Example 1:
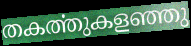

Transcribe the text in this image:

തകൎത്തുകളഞ്ഞു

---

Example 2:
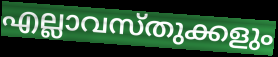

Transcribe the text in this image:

എല്ലാവസ്തുക്കളും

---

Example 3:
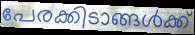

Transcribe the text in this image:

പേരക്കിടാങ്ങൾക്ക്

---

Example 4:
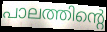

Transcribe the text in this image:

പാലത്തിന്റെ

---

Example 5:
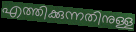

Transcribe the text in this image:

എത്തിക്കുന്നതിനുള്ള